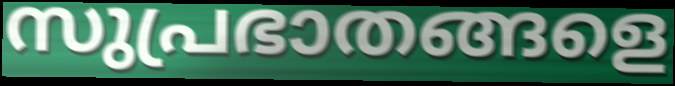
സുപ്രഭാതങ്ങളെ